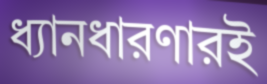
ধ্যানধারণারই